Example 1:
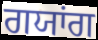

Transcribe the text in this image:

ਗਯਾਂਗ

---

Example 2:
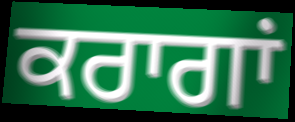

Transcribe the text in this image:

ਕਰਾਗਾਂ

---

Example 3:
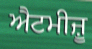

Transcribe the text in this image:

ਐਟਮੀਜ਼ੂ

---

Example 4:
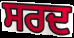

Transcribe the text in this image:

ਸਰਦ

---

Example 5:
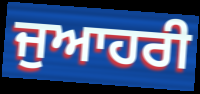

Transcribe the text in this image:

ਜੁਆਹਰੀ